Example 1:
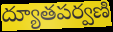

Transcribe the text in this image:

ద్యూతపర్వణి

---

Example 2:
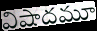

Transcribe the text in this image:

విషాదమూ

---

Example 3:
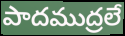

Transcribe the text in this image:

పాదముద్రలే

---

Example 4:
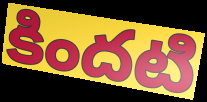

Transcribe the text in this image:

కిందటి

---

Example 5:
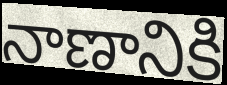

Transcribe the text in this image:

నాణానికి